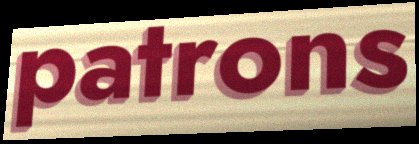
patrons